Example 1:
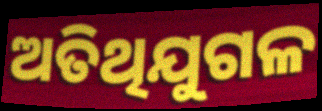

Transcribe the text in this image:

ଅତିଥିଯୁଗଳ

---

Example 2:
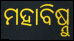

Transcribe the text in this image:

ମହାବିଷ୍ନୁ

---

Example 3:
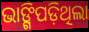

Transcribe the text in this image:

ଭାଙ୍ଗିପଡ଼ିଥିଲା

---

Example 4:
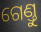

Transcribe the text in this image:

ଗେଣ୍ତୁ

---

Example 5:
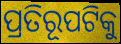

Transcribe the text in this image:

ପ୍ରତିରୂପଟିକୁ